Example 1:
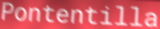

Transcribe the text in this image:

Pontentilla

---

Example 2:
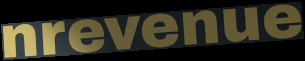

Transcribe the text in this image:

nrevenue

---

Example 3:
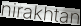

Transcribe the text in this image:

nirakhtan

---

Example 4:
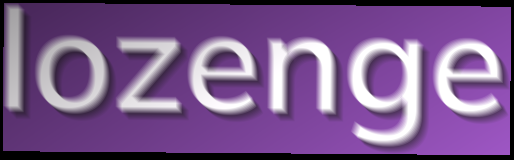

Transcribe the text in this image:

lozenge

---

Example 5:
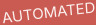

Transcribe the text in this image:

AUTOMATED